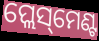
ପ୍ଲେସ୍‌ମେଣ୍ଟ